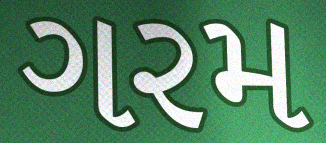
ગરમ